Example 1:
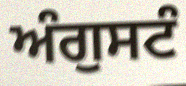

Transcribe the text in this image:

ਅੰਗੁਸਟੰ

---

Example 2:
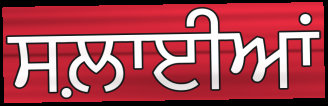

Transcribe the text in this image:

ਸਲ਼ਾਈਆਂ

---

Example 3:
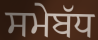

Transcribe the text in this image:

ਸਮੇਬੱਧ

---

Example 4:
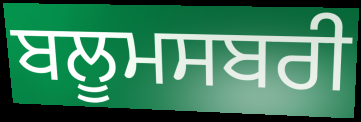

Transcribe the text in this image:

ਬਲੂਮਸਬਰੀ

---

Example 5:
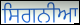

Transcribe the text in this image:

ਸਿਗਨੀਆ